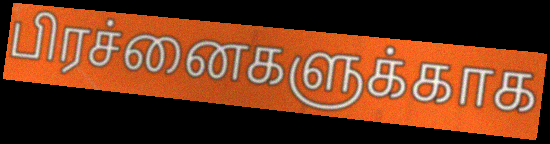
பிரச்னைகளுக்காக